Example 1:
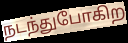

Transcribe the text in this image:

நடந்துபோகிற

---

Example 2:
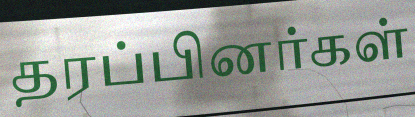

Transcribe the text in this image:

தரப்பினர்கள்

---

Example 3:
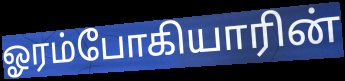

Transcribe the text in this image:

ஓரம்போகியாரின்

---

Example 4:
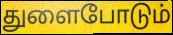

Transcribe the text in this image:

துளைபோடும்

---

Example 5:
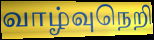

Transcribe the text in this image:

வாழ்வுநெறி